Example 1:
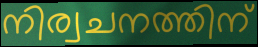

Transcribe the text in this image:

നിര്വചനത്തിന്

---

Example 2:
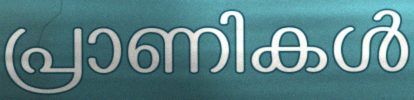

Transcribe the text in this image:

പ്രാണികൾ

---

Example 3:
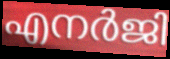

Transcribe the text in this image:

എനർജി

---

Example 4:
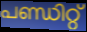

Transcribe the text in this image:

പണ്ഡിറ്റ്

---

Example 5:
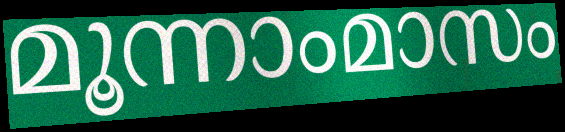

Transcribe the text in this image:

മൂന്നാംമാസം